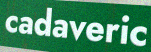
cadaveric